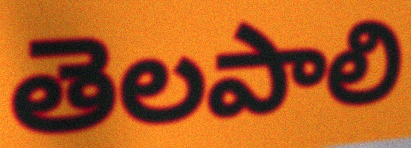
తెలపాలి